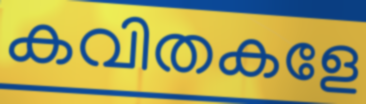
കവിതകളേ